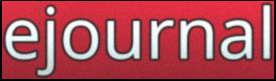
ejournal